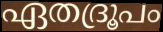
ഏതദ്രൂപം